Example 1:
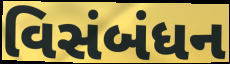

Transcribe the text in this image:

વિસંબંધન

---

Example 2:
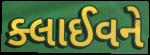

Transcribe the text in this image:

ક્લાઈવને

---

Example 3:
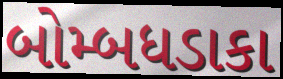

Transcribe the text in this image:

બોમ્બધડાકા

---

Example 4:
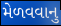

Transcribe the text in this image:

મેળવવાનુ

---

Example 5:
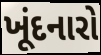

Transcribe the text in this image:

ખૂંદનારો